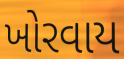
ખોરવાય